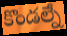
కొండల్నే